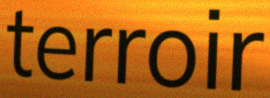
terroir